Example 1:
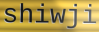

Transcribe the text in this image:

shiwji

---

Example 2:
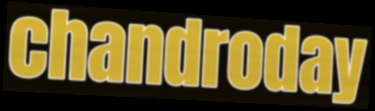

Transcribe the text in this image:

chandroday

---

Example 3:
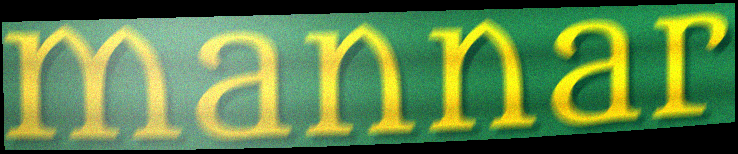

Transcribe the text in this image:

mannar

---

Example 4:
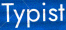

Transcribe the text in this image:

Typist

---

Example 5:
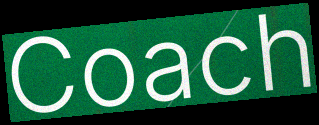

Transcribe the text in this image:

Coach